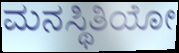
ಮನಸ್ಥಿತಿಯೋ